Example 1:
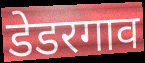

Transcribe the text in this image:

डेडरगाव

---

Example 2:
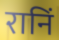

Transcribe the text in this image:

रानिं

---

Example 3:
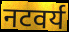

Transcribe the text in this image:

नटवर्य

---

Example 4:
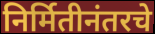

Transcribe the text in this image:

निर्मितीनंतरचे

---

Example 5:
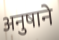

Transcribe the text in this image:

अनुषाने